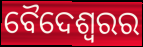
ବୈଦେଶ୍ୱରର